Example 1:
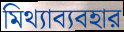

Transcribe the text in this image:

মিথ্যাব্যবহার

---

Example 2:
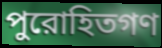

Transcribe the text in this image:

পুরোহিতগণ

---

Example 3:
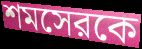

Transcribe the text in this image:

শমসেরকে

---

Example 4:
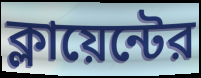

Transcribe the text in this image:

ক্লায়েন্টের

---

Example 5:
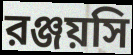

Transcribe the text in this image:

রঞ্জয়সি